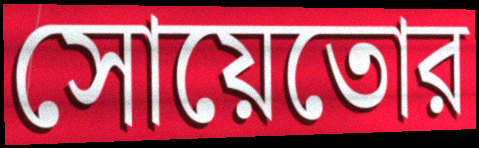
সোয়েতোর